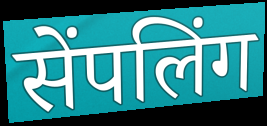
सेंपलिंग